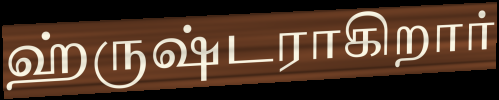
ஹ்ருஷ்டராகிறார்